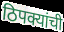
ठिपक्यांची